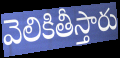
వెలికితీస్తారు